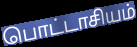
பொட்டாசியம்